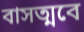
বাসত্মবে